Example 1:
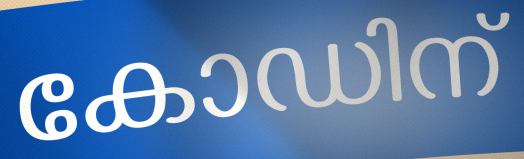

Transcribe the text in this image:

കോഡിന്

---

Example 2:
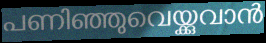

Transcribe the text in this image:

പണിഞ്ഞുവെയ്ക്കുവാൻ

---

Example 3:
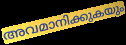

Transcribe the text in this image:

അവമാനിക്കുകയും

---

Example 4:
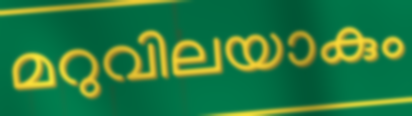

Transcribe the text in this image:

മറുവിലയാകും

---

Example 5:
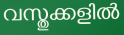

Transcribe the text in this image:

വസ്തുക്കളിൽ